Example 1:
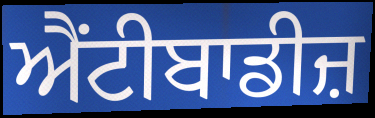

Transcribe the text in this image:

ਐਂਟੀਬਾਡੀਜ਼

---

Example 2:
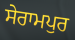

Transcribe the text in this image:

ਸੇਰਾਮਪੁਰ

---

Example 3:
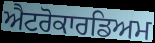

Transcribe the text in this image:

ਐਟਰੋਕਾਰਡਿਅਮ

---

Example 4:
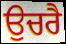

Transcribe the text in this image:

ਉਚਰੈ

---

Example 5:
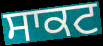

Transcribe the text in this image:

ਸਾਕਟ